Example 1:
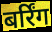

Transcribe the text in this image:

बर्रिंग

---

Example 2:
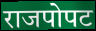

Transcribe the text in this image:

राजपोपट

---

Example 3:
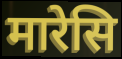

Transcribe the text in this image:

मारेसि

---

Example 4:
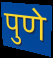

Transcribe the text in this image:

पुणे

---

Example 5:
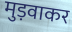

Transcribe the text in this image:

मुड़वाकर